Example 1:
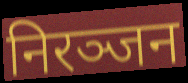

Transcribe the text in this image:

निरञ्जन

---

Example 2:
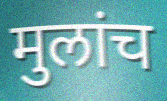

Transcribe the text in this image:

मुलांच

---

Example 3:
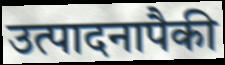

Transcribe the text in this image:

उत्पादनापैकी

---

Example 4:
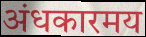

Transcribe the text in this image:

अंधकारमय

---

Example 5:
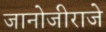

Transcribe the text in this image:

जानोजीराजे